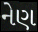
નેણ